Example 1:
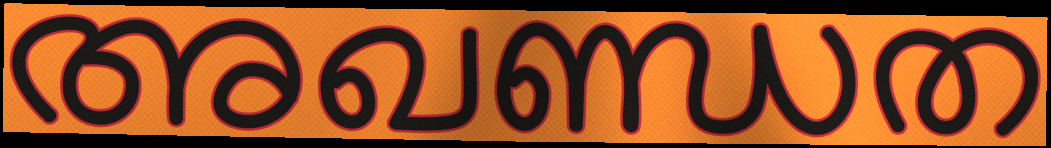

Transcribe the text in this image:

അഖണ്ഡത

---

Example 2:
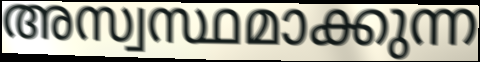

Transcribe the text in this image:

അസ്വസ്ഥമാക്കുന്ന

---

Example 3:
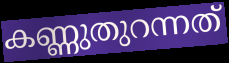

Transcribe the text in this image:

കണ്ണുതുറന്നത്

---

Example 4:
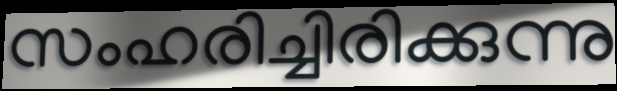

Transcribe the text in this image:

സംഹരിച്ചിരിക്കുന്നു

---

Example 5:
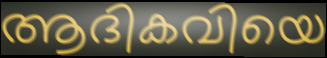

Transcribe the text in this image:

ആദികവിയെ